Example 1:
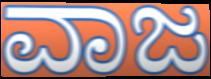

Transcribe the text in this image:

ವಾಜ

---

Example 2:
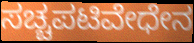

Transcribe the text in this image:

ಸಚ್ಚಪಟಿವೇಧೇನ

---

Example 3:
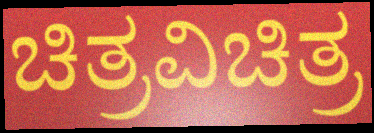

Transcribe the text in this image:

ಚಿತ್ರವಿಚಿತ್ರ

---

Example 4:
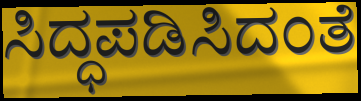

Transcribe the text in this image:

ಸಿದ್ಧಪಡಿಸಿದಂತೆ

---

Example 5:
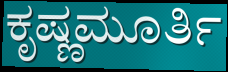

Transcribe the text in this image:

ಕೃಷ್ಣಮೂರ್ತಿ